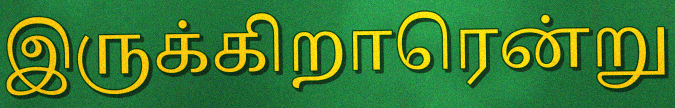
இருக்கிறாரென்று